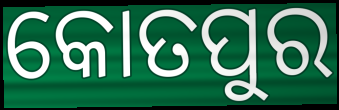
କୋତପୁର